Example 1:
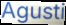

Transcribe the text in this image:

Agusti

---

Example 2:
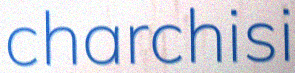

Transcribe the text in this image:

charchisi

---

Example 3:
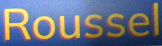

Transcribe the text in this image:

Roussel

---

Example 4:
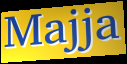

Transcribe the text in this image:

Majja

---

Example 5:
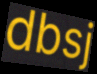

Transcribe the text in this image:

dbsj